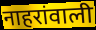
नाहरांवाली